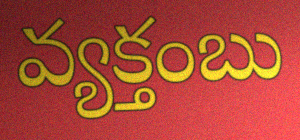
వ్యక్తంబు